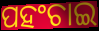
ପହଂଚାଇ